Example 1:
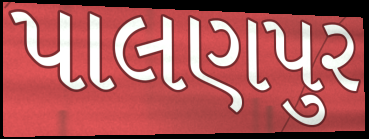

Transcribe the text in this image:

પાલણપુર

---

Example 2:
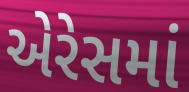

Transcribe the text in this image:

એરેસમાં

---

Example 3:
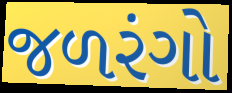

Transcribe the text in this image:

જળરંગો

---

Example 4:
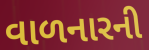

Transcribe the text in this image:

વાળનારની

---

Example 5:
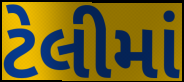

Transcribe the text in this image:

ટેલીમાં